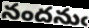
నందనుఁ